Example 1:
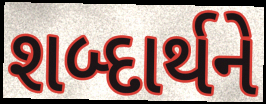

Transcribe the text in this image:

શબ્દાર્થને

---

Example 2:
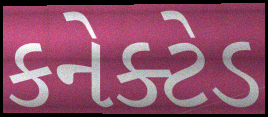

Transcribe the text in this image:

કનેક્ટેડ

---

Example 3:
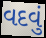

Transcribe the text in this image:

વદવું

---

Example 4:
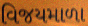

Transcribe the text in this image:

વિજયમાળા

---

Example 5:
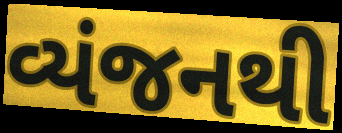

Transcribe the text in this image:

વ્યંજનથી